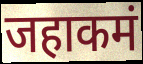
जहाकमं